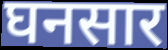
घनसार